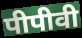
पीपीवी